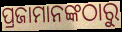
ପ୍ରଜାମାନଙ୍କଠାରୁ